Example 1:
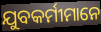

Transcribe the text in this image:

ଯୁବକର୍ମୀମାନେ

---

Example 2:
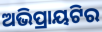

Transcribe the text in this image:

ଅଭିପ୍ରାୟଟିର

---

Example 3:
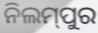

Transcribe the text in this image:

ନିଲମ୍‍ପୁର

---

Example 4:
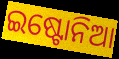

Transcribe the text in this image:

ଇଷ୍ଟୋନିଆ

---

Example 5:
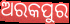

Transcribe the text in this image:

ଅରକପୁର